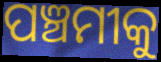
ପଞ୍ଚମୀକୁ